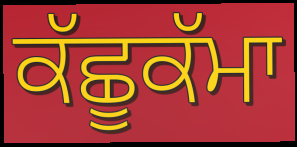
ਕੱਛੂਕੱਮਾ